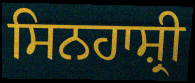
ਸਿਨਹਾਸ਼੍ਰੀ